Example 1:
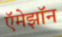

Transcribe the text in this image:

ऍमेझॉन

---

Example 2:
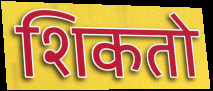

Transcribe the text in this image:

शिकतो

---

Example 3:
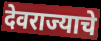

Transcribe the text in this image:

देवराज्याचे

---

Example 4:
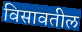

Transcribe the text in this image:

विसावतील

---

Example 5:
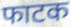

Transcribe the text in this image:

फाटक